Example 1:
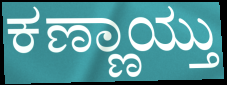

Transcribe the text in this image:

ಕಣ್ಣಾಯ್ತು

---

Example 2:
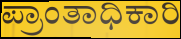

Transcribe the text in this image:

ಪ್ರಾಂತಾಧಿಕಾರಿ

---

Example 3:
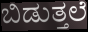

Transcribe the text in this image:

ಬಿಡುತ್ತಲೆ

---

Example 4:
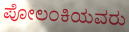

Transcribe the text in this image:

ಪೋಲಂಕಿಯವರು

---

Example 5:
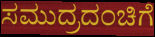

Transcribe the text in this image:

ಸಮುದ್ರದಂಚಿಗೆ